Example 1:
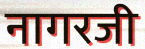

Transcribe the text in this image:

नागरजी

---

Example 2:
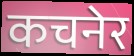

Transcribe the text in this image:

कचनेर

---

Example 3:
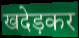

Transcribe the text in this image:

खदेड़कर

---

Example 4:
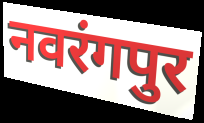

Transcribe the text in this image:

नवरंगपुर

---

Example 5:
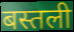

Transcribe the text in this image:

बस्तली